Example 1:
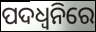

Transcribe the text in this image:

ପଦଧ୍ୱନିରେ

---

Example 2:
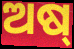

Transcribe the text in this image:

ଅଷ୍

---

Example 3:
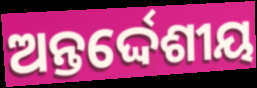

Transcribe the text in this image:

ଅନ୍ତର୍ଦ୍ଦେଶୀୟ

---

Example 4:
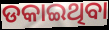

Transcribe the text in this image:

ଡକାଇଥିବା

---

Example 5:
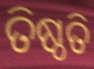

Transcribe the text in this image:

ତିଷ୍ଠତି